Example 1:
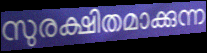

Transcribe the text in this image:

സുരക്ഷിതമാക്കുന്ന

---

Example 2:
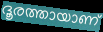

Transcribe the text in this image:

ദൂരത്തായാണ്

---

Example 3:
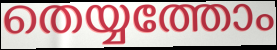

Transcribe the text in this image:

തെയ്യത്തോം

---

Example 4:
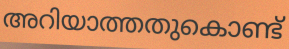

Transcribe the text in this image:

അറിയാത്തതുകൊണ്ട്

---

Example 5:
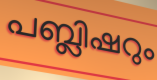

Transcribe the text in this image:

പബ്ലിഷറും